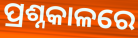
ପ୍ରଶ୍ନକାଳରେ